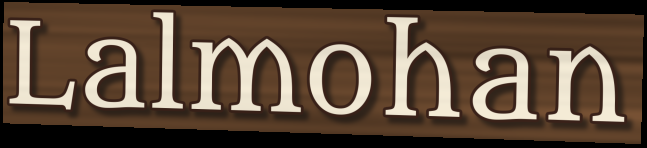
Lalmohan